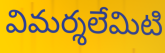
విమర్శలేమిటి